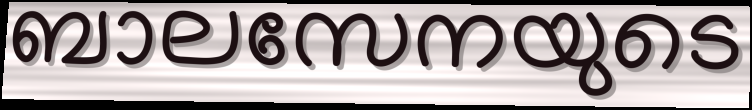
ബാലസേനയുടെ